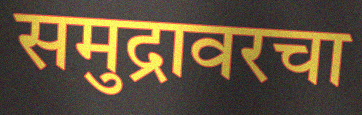
समुद्रावरचा